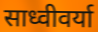
साध्वीवर्या